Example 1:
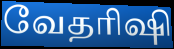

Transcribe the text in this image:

வேதரிஷி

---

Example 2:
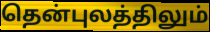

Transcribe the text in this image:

தென்புலத்திலும்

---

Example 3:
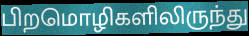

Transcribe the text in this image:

பிறமொழிகளிலிருந்து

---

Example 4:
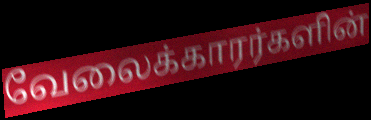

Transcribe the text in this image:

வேலைக்காரர்களின்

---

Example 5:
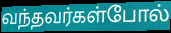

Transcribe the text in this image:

வந்தவர்கள்போல்